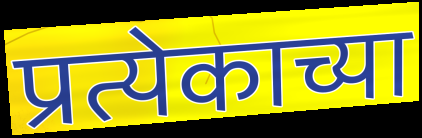
प्रत्येकाच्या